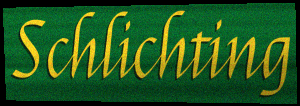
Schlichting